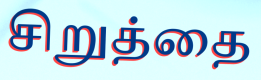
சிறுத்தை